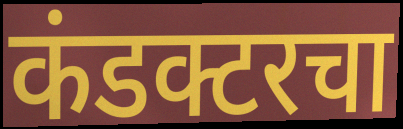
कंडक्टरचा